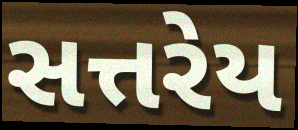
સત્તરેય